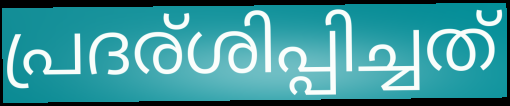
പ്രദര്ശിപ്പിച്ചത്